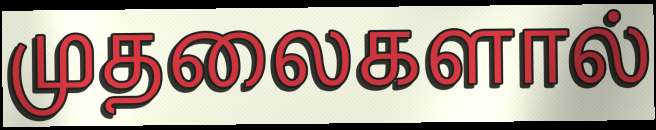
முதலைகளால்